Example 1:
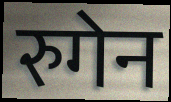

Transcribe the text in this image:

रुगेन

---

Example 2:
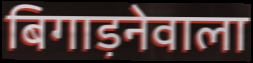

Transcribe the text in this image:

बिगाड़नेवाला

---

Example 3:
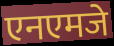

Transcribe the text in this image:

एनएमजे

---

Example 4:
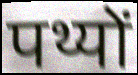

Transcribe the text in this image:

पथ्यों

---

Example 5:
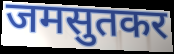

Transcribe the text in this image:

जमसुतकर